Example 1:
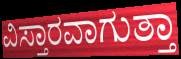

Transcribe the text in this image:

ವಿಸ್ತಾರವಾಗುತ್ತಾ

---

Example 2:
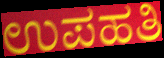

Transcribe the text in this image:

ಉಪಹತಿ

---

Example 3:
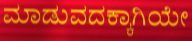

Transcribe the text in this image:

ಮಾಡುವದಕ್ಕಾಗಿಯೇ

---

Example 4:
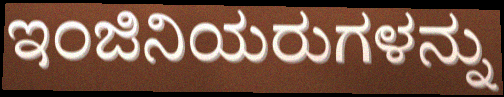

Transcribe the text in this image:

ಇಂಜಿನಿಯರುಗಳನ್ನು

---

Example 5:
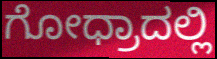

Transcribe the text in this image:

ಗೋಧ್ರಾದಲ್ಲಿ